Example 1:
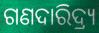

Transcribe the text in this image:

ଗଣଦାରିଦ୍ର୍ୟ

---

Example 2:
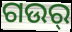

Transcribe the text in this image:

ଗଉର୍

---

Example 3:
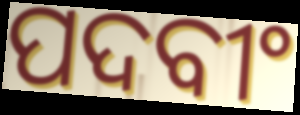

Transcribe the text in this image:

ପଦବୀଂ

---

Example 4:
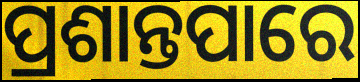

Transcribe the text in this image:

ପ୍ରଶାନ୍ତପାରେ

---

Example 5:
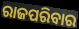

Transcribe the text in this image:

ରାଜପରିବାର